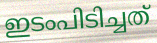
ഇടംപിടിച്ചത്